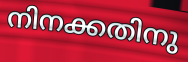
നിനക്കതിനു